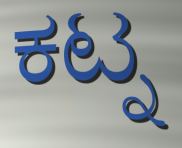
ಕಟ್ನ